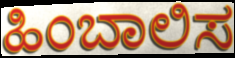
ಹಿಂಬಾಲಿಸ